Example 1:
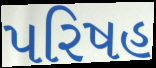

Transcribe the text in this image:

પરિષહ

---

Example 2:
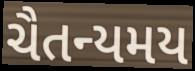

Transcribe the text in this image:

ચૈતન્યમય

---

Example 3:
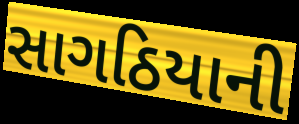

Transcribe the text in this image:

સાગઠિયાની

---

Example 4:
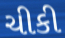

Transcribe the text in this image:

ચીકી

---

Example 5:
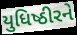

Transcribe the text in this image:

યુધિષ્ઠીરને